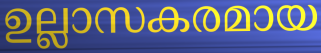
ഉല്ലാസകരമായ